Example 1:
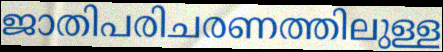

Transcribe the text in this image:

ജാതിപരിചരണത്തിലുള്ള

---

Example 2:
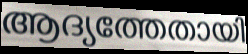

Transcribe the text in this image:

ആദ്യത്തേതായി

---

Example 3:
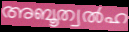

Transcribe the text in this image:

അബൂത്വൽഹ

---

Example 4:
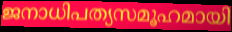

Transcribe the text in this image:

ജനാധിപത്യസമൂഹമായി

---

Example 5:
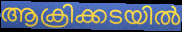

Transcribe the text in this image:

ആക്രിക്കടയിൽ